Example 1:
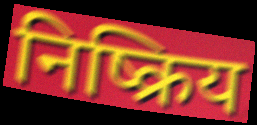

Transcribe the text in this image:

निष्क्रिय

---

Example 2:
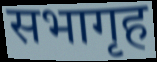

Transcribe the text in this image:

सभागृह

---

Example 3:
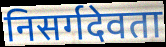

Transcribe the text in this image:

निसर्गदेवता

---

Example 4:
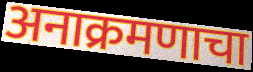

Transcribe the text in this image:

अनाक्रमणाचा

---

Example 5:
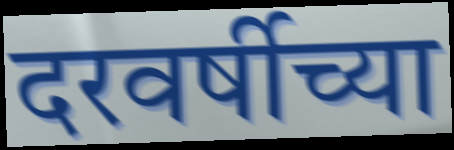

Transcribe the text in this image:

दरवर्षीच्या